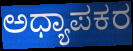
ಅಧ್ಯಾಪಕರ